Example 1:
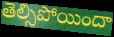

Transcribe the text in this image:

తెల్సిపోయిందా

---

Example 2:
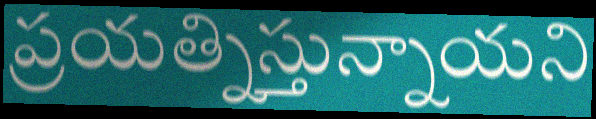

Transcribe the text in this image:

ప్రయత్నిస్తున్నాయని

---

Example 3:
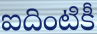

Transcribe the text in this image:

ఐదింటికీ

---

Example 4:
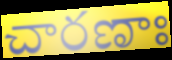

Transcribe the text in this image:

చారణాః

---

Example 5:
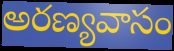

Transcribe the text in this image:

అరణ్యవాసం